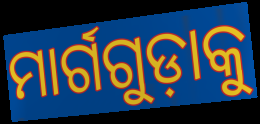
ମାର୍ଗଗୁଡ଼ାକୁ